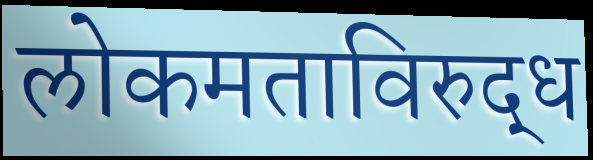
लोकमताविरुद्ध